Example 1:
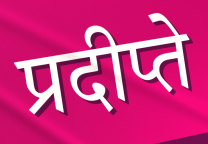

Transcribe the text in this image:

प्रदीप्ते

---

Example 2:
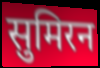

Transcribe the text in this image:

सुमिरन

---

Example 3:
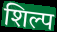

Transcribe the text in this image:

शिल्‍प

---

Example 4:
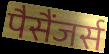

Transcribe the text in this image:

पैसैंजर्स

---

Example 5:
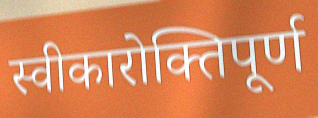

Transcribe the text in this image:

स्वीकारोक्तिपूर्ण